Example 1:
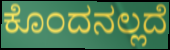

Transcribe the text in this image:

ಕೊಂದನಲ್ಲದೆ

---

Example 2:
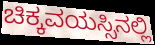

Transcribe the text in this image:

ಚಿಕ್ಕವಯಸ್ಸಿನಲ್ಲಿ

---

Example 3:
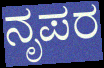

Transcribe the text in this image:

ನೃಪರ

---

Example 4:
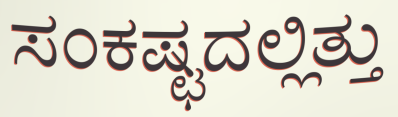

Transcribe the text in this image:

ಸಂಕಷ್ಟದಲ್ಲಿತ್ತು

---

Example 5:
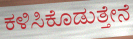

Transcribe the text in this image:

ಕಳಿಸಿಕೊಡುತ್ತೇನೆ